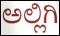
ಅಲ್ಲಿಗಿ